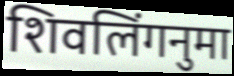
शिवलिंगनुमा